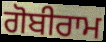
ਗੋਬੀਰਾਮ